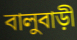
বালুবাড়ী